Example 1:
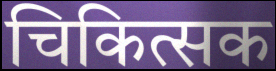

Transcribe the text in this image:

चिकित्सक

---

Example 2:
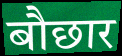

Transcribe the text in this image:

बौछार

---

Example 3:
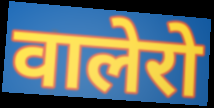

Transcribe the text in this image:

वालेरो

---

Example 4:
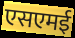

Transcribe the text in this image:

एसएमई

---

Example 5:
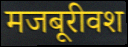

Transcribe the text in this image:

मजबूरीवश